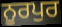
ਨੂਰਪੁਰ